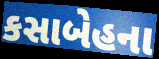
કસાબેહના